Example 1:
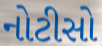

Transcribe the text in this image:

નોટીસો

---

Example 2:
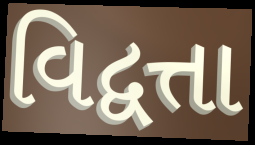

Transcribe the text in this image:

વિદ્વત્તા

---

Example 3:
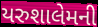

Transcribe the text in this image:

યરુશાલેમની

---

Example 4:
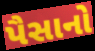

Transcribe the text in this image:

પૈસાનો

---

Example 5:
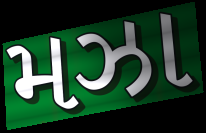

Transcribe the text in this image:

મઝા